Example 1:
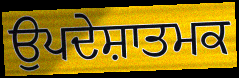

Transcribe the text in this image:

ਉਪਦੇਸ਼ਾਤਮਕ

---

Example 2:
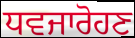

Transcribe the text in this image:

ਧਵਜਾਰੋਹਣ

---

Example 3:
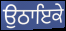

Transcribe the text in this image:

ਉਠਾਇਕੇ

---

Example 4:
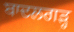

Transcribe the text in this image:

ਬਾਦਲਗੜ੍ਹ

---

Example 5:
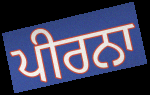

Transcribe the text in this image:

ਪੀਰਨਾ